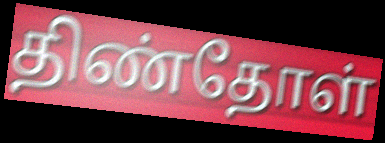
திண்தோள்